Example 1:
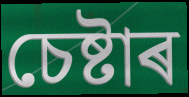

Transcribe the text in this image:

চেষ্টাৰ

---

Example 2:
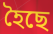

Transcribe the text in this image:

হৈছে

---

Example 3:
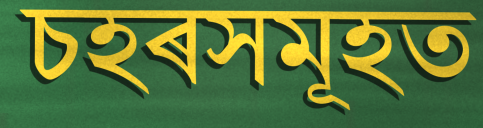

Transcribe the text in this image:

চহৰসমূহত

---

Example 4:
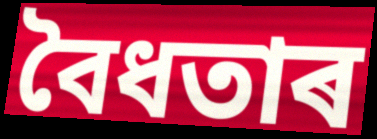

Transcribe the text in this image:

বৈধতাৰ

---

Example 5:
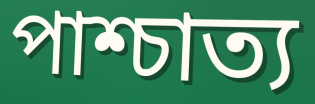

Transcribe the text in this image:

পাশ্চাত্য